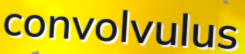
convolvulus